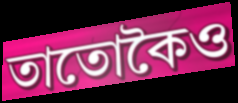
তাতোকৈও